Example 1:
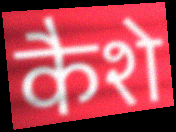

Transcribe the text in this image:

कैशे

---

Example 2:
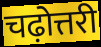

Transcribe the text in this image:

चढ़ोत्तरी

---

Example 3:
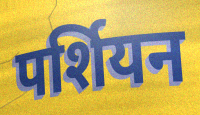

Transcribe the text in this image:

पर्शियन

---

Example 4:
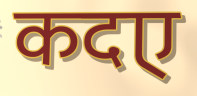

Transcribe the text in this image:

कदए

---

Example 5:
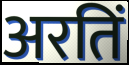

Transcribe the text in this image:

अरतिं